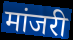
मांजरी